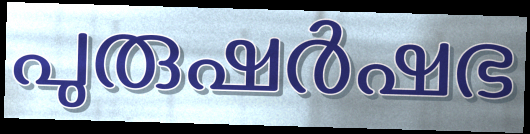
പുരുഷർഷഭ